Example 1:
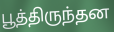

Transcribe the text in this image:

பூத்திருந்தன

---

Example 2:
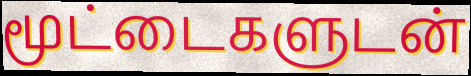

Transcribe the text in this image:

மூட்டைகளுடன்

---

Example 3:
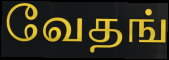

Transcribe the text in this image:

வேதங்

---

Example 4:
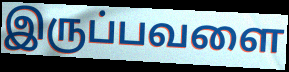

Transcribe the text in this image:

இருப்பவளை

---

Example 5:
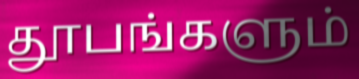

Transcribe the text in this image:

தூபங்களும்